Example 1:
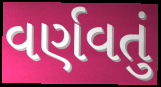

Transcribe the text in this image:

વર્ણવતું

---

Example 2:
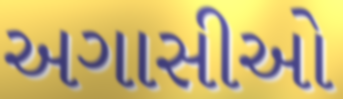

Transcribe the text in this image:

અગાસીઓ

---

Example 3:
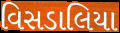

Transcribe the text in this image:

વિસડાલિયા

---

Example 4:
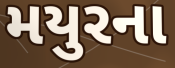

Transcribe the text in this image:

મયુરના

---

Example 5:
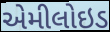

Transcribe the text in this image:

એમીલોઇડ